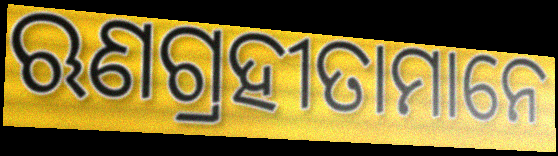
ଋଣଗ୍ରହୀତାମାନେ